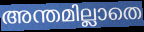
അന്തമില്ലാതെ